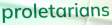
proletarians